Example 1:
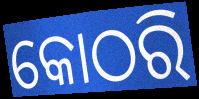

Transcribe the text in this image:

କୋଠରି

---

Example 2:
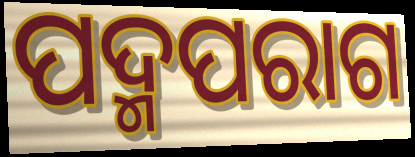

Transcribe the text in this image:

ପଦ୍ମପରାଗ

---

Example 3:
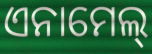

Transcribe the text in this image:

ଏନାମେଲ୍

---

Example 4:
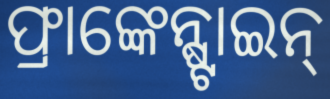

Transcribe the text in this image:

ଫ୍ରାଙ୍କେନ୍ଷ୍ଟାଇନ୍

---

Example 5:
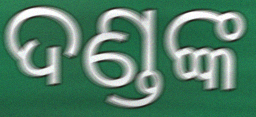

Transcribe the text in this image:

ଦଣ୍ଡଙ୍କ